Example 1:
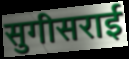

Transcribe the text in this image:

सुगीसराई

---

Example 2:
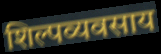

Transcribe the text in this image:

शिल्पव्यवसाय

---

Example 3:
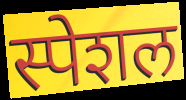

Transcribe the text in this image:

स्पेशल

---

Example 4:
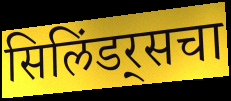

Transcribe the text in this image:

सिलिंडर्सचा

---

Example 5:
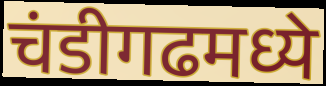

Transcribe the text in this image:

चंडीगढमध्ये